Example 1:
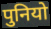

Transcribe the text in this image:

पुनियो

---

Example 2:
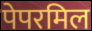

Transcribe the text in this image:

पेपरमिल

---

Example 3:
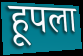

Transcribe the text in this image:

हूपला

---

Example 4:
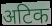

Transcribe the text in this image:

अटिक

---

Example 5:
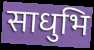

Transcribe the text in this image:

साधुभि